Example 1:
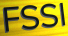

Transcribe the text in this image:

FSSI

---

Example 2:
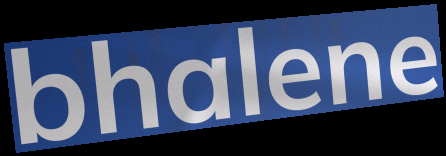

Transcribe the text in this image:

bhalene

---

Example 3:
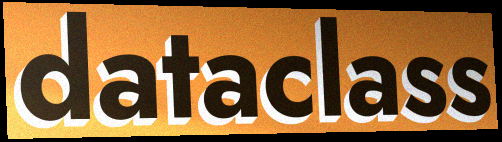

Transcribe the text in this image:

dataclass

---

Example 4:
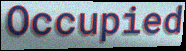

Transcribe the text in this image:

Occupied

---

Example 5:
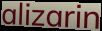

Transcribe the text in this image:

alizarin